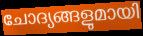
ചോദ്യങ്ങളുമായി